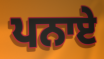
ਪਨਾਏ